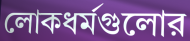
লোকধর্মগুলোর